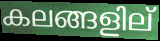
കലങ്ങളില്